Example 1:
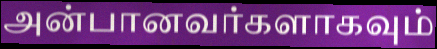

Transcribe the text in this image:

அன்பானவர்களாகவும்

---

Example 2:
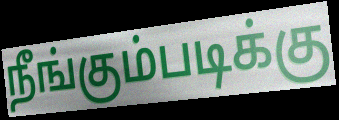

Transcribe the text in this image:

நீங்கும்படிக்கு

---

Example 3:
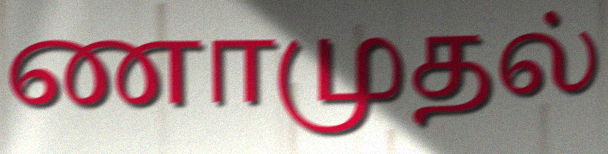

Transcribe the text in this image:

ணாமுதல்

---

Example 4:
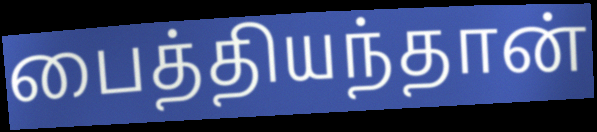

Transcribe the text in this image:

பைத்தியந்தான்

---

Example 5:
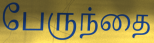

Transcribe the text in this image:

பேருந்தை